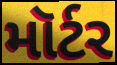
મૉર્ટર